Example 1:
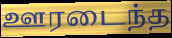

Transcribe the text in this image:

ஊரடைந்த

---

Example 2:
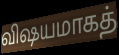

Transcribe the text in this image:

விஷயமாகத்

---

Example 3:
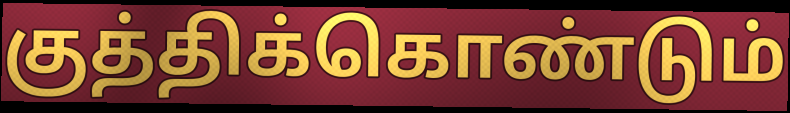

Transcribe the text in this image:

குத்திக்கொண்டும்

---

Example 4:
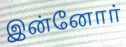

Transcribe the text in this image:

இன்னோர்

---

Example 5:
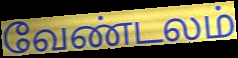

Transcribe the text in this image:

வேண்டலம்